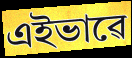
এইভাৱে